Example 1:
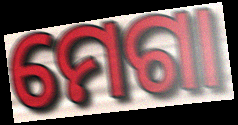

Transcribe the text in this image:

ମେଗା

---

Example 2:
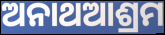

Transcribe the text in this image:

ଅନାଥଆଶ୍ରମ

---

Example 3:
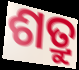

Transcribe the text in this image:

ଶତ୍ରୁ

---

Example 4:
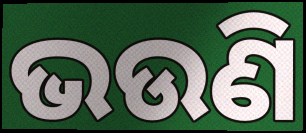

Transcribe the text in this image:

ଭଉଣି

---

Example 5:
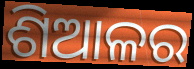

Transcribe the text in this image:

ଶିଆଳର